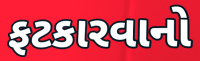
ફટકારવાનો